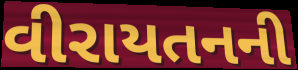
વીરાયતનની